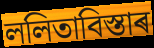
ললিতাবিস্তাৰ